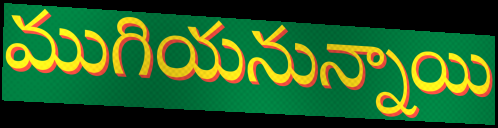
ముగియనున్నాయి